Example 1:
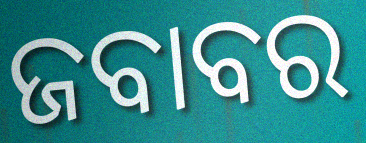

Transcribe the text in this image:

ଜବାବର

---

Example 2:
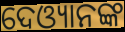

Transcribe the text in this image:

ଦେଓ୍ୟାନଙ୍କ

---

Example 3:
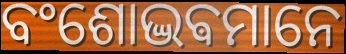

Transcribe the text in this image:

ବଂଶୋଦ୍ଭଵମାନେ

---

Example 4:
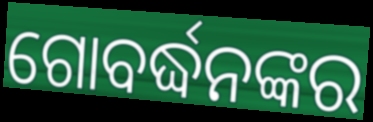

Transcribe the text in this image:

ଗୋବର୍ଦ୍ଧନଙ୍କର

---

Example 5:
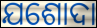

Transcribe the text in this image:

ଯଶୋଦା